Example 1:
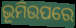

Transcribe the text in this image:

ଭୂମିଉପରେ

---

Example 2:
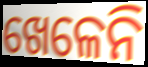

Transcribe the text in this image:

ଖେଳେନି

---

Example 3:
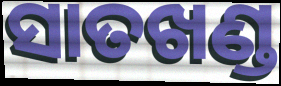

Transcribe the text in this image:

ସାତଖଣ୍ଡ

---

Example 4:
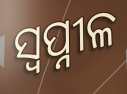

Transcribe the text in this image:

ସ୍ୱପ୍ନୀଳ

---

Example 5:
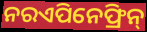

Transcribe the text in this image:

ନରଏପିନେଫ୍ରିନ୍